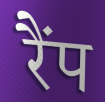
रैंप